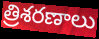
త్రిశరణాలు